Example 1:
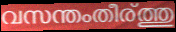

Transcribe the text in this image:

വസന്തംതീര്ത്തു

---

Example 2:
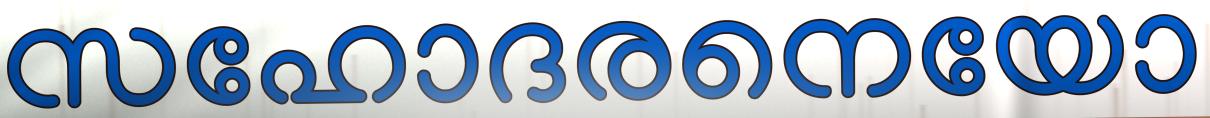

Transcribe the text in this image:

സഹോദരനെയോ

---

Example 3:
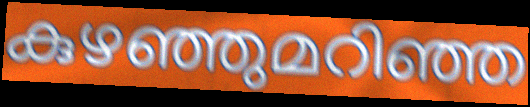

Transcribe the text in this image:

കുഴഞ്ഞുമറിഞ്ഞ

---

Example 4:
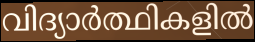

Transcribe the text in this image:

വിദ്യാർത്ഥികളിൽ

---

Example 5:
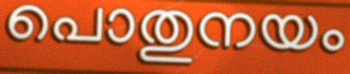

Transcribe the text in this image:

പൊതുനയം